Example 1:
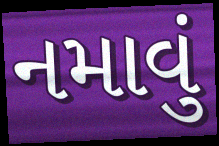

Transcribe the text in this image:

નમાવું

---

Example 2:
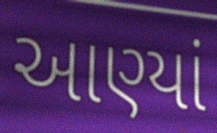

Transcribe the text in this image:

આણ્યાં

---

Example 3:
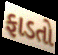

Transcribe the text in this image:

ફાડતો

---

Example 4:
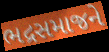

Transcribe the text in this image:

ભદ્રસમાજને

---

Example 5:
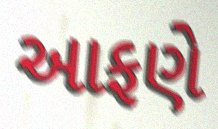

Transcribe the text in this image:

આફણે